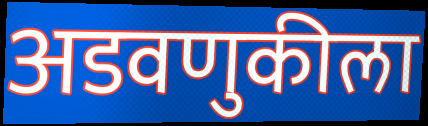
अडवणुकीला